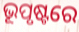
ଭୂପୃଷ୍ଟରେ